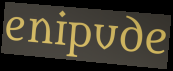
enipude